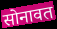
सोनावत